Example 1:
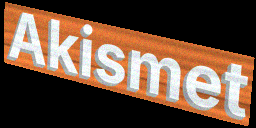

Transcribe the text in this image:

Akismet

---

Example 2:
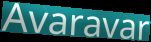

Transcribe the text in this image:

Avaravar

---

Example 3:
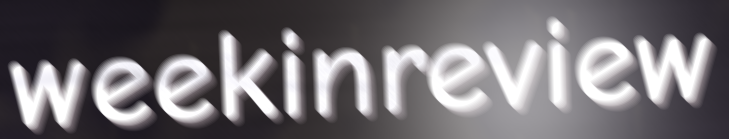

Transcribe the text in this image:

weekinreview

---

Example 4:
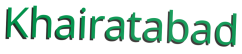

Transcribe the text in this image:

Khairatabad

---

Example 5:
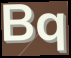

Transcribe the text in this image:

Bq